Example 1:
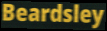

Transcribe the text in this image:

Beardsley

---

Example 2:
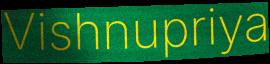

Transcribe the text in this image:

Vishnupriya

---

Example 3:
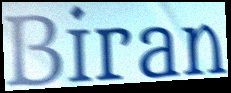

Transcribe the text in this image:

Biran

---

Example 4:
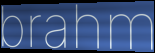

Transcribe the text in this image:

brahm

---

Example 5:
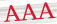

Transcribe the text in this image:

AAA